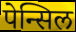
पेन्सिल